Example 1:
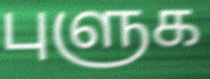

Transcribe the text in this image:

புளுக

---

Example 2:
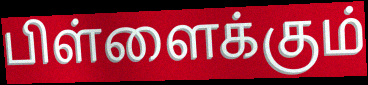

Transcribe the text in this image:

பிள்ளைக்கும்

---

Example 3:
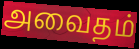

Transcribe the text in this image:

அவைதம்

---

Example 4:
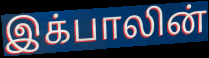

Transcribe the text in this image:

இக்பாலின்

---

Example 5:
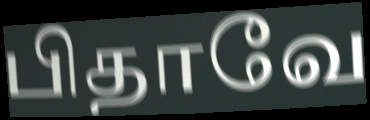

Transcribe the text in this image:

பிதாவே